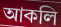
আকলি